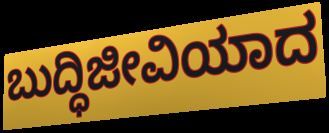
ಬುದ್ಧಿಜೀವಿಯಾದ